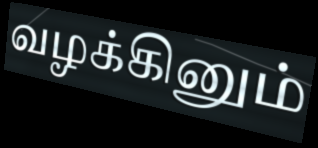
வழக்கினும்